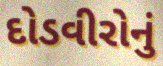
દોડવીરોનું